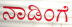
ನಾಡಿಂಗೆ